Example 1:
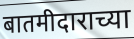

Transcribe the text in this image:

बातमीदाराच्या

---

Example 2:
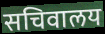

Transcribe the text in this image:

सचिवालय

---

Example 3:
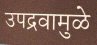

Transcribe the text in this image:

उपद्रवामुळे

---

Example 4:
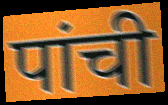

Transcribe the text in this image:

पांची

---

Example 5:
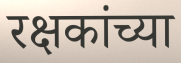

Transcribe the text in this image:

रक्षकांच्या